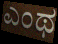
ಎಂಥ